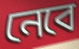
নেবে